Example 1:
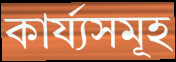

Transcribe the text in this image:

কাৰ্য্যসমূহ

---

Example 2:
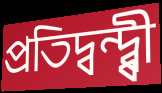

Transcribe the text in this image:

প্ৰতিদ্বন্দ্ব্বী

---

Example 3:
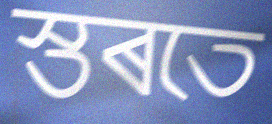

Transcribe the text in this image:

স্তৰতে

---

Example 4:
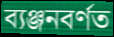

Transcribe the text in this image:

ব্যঞ্জনবৰ্ণত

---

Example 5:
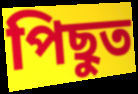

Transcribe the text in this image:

পিছুত